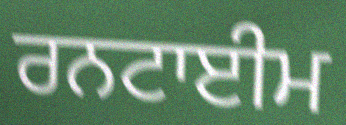
ਰਨਟਾਈਮ